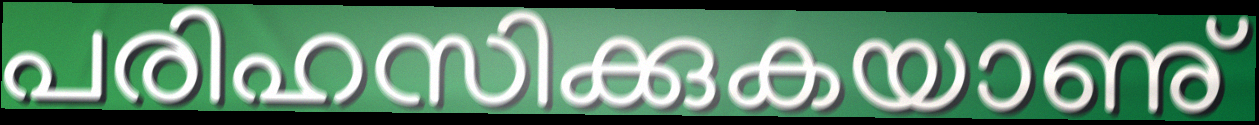
പരിഹസിക്കുകയാണു്